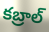
కబ్రాల్